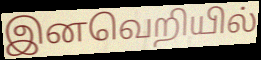
இனவெறியில்